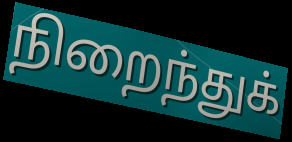
நிறைந்துக்